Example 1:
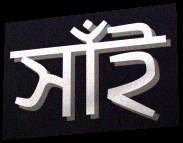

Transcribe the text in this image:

সাঁই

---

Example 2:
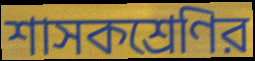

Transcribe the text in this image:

শাসকশ্রেণির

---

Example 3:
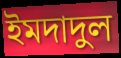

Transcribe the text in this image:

ইমদাদুল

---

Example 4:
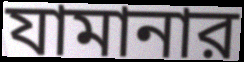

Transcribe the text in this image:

যামানার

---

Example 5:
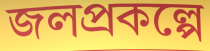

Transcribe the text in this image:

জলপ্রকল্পে